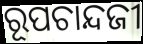
ରୂପଚାନ୍ଦଜୀ